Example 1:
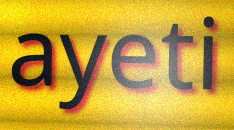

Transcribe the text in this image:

ayeti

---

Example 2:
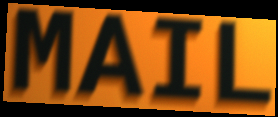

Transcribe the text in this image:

MAIL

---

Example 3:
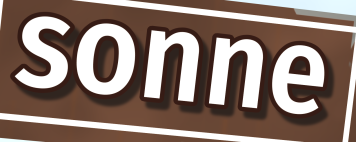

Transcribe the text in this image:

sonne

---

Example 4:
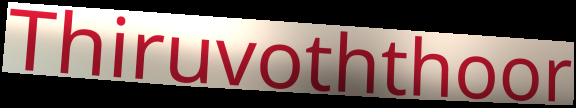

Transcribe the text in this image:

Thiruvoththoor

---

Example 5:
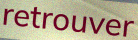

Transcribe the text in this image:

retrouver